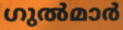
ഗുൽമാർ